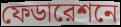
ফেডারেশনে